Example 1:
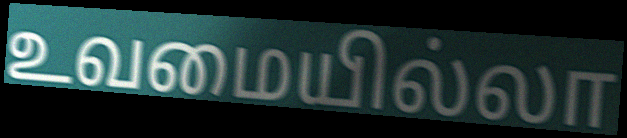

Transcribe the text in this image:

உவமையில்லா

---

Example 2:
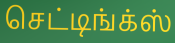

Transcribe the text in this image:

செட்டிங்க்ஸ்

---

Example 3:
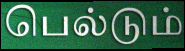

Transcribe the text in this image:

பெல்டும்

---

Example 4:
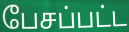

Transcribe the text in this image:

பேசப்பட்ட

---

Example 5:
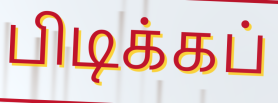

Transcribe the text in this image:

பிடிக்கப்